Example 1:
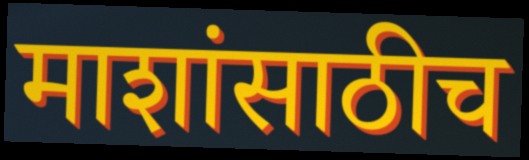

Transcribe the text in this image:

माशांसाठीच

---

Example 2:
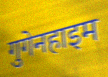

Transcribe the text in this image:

गुगेनहाइम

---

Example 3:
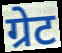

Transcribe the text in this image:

ग्रेट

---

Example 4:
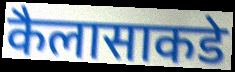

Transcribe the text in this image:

कैलासाकडे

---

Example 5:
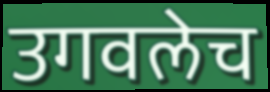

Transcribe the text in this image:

उगवलेच